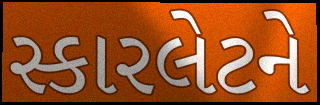
સ્કારલેટને